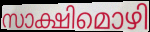
സാക്ഷിമൊഴി